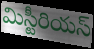
మిస్టీరియస్